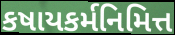
કષાયકર્મનિમિત્ત